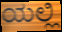
ಯಲ್ಲಿ